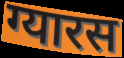
ग्यारस